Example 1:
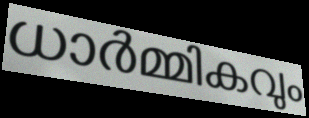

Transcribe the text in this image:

ധാർമ്മികവും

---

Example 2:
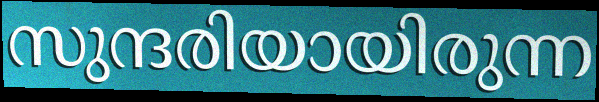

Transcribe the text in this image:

സുന്ദരിയായിരുന്ന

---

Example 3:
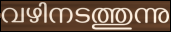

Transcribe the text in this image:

വഴിനടത്തുന്നു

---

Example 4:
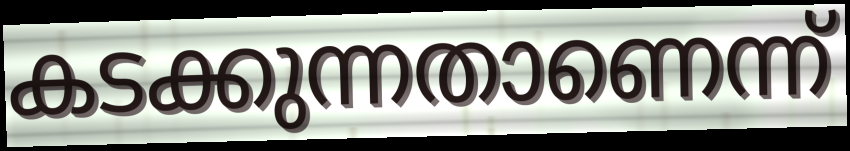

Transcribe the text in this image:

കടക്കുന്നതാണെന്ന്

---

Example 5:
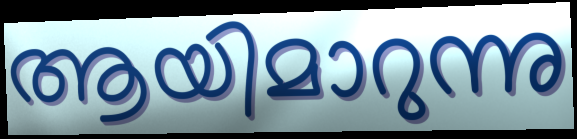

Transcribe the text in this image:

ആയിമാറുന്നു